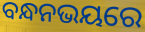
ବନ୍ଧନଭୟରେ